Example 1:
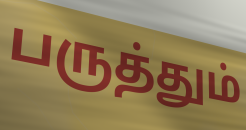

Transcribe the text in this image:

பருத்தும்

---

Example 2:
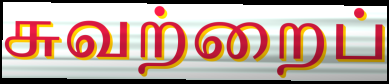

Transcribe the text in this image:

சுவற்றைப்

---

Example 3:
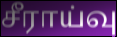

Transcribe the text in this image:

சீராய்வு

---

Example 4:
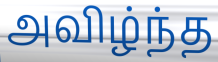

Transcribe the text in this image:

அவிழ்ந்த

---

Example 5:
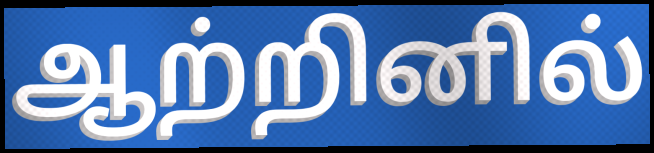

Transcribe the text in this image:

ஆற்றினில்